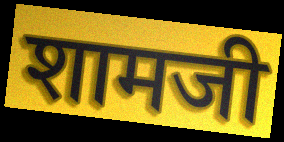
शामजी